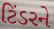
ટિંડરને